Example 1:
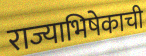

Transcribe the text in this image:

राज्याभिषेकाची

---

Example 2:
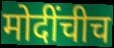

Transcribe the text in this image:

मोदींचीच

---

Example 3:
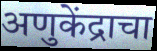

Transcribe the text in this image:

अणुकेंद्राचा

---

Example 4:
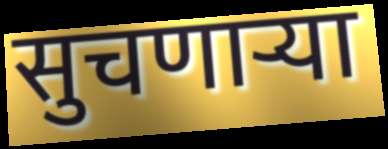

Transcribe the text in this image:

सुचणाऱ्या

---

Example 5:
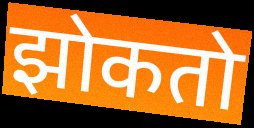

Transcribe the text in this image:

झोकतो